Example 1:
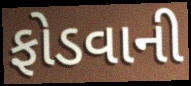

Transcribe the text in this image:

ફોડવાની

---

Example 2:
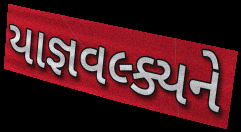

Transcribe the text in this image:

યાજ્ઞવલ્ક્યને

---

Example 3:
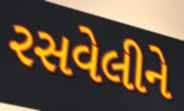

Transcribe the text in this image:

રસવેલીને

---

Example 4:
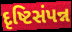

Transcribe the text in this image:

દૃષ્ટિસંપન્ન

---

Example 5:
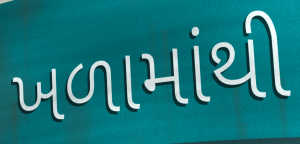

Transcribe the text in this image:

ખળામાંથી